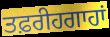
ਤਫ਼ਰੀਹਗਾਹਾਂ